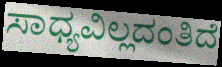
ಸಾಧ್ಯವಿಲ್ಲದಂತಿದೆ